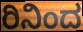
ರಿನಿಂದ